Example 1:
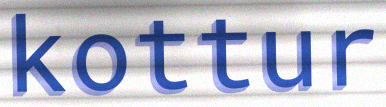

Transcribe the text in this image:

kottur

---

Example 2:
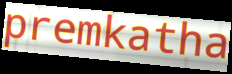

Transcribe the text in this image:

premkatha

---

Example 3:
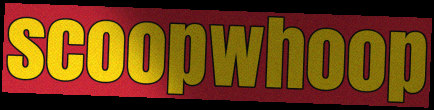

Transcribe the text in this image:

scoopwhoop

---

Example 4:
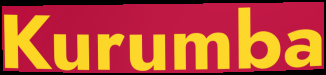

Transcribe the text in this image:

Kurumba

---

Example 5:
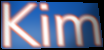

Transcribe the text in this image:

Kim